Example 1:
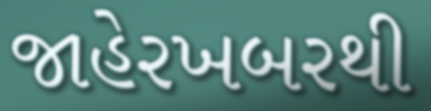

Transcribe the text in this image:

જાહેરખબરથી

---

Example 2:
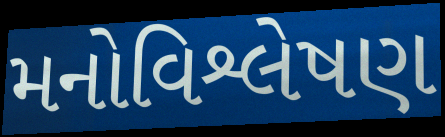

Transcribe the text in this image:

મનોવિશ્લેષણ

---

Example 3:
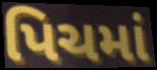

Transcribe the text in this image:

પિચમાં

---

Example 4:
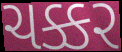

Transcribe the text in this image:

ચક્કર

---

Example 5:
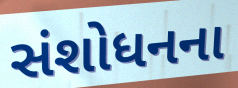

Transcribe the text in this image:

સંશોધનના